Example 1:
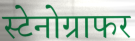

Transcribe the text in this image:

स्टेनोग्राफर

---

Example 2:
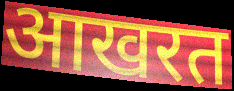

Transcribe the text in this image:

आखरत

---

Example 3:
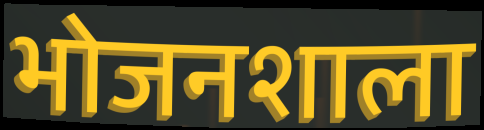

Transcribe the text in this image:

भोजनशाला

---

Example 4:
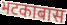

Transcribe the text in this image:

भटकाबास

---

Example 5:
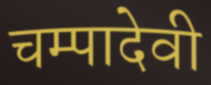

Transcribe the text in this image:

चम्पादेवी